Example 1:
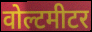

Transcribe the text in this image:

वोल्टमीटर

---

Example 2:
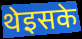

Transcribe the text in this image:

थेइसके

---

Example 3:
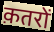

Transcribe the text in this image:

क़तरों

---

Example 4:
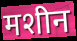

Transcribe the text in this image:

मशीन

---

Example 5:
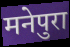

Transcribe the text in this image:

मनेपुरा